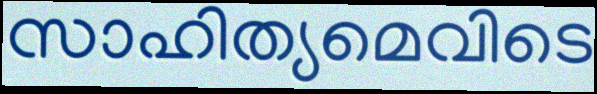
സാഹിത്യമെവിടെ